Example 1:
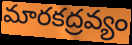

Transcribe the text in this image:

మారకద్రవ్యం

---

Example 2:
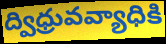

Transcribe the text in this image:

ద్విధ్రువవ్యాధికి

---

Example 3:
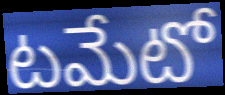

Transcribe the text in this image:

టమేటో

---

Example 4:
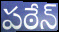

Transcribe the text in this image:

పఠేన్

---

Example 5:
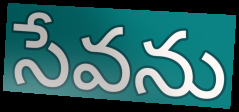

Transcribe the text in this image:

సేవను